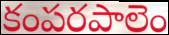
కంపరపాలెం